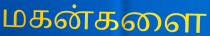
மகன்களை